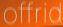
offrid